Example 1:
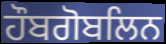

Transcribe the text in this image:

ਹੌਬਗੋਬਲਿਨ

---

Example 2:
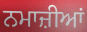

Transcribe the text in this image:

ਨਮਾਜ਼ੀਆਂ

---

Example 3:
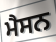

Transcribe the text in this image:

ਮੈਸਨ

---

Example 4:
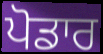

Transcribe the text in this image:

ਪੋਡਾਰ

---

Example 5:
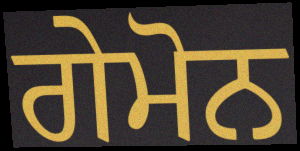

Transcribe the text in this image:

ਗੇਮੋਨ